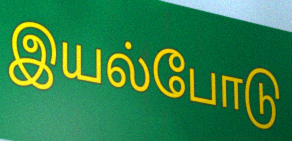
இயல்போடு